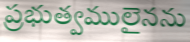
ప్రభుత్వములైనను